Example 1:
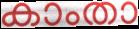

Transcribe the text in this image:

കാംതാ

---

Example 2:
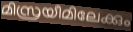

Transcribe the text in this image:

മിസ്രയീമിലേക്കും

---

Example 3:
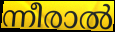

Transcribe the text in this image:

ന്നീരാൽ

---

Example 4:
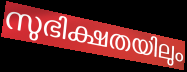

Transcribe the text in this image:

സുഭിക്ഷതയിലും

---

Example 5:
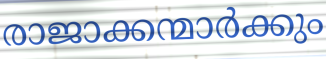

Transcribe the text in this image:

രാജാക്കന്മാർക്കും